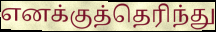
எனக்குத்தெரிந்து